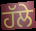
ਹੱਲੇ